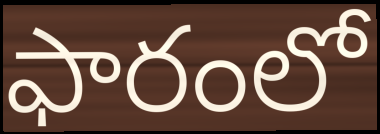
ఫారంలో